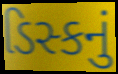
ડિસ્કનું